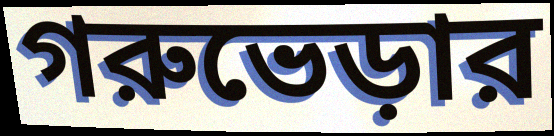
গরুভেড়ার